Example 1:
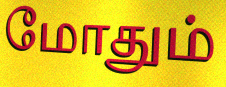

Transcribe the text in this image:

மோதும்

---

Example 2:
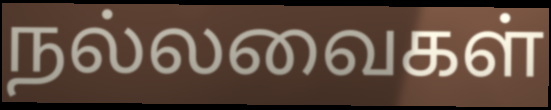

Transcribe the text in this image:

நல்லவைகள்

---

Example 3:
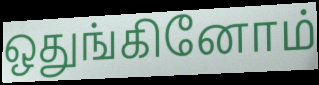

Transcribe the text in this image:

ஒதுங்கினோம்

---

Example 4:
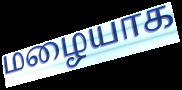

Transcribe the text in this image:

மழையாக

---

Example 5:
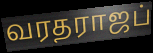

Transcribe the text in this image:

வரதராஜப்